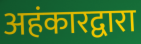
अहंकारद्वारा